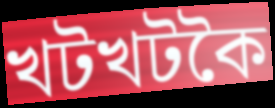
খটখটকৈ